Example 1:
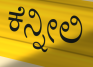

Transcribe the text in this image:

ಕೆನ್ನೀಲಿ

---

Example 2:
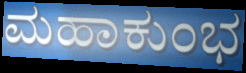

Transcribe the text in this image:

ಮಹಾಕುಂಭ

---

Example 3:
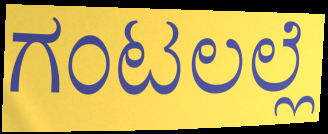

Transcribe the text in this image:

ಗಂಟಲಲ್ಲೆ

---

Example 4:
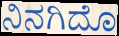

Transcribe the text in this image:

ನಿನಗಿದೊ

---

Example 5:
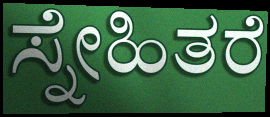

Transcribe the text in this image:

ಸ್ನೇಹಿತರೆ